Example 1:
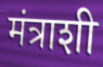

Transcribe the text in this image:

मंत्राशी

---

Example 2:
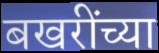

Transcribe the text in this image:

बखरींच्या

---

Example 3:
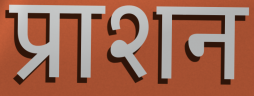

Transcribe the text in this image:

प्राशन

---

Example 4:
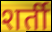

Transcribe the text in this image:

शर्ती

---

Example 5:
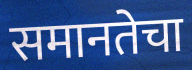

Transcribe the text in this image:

समानतेचा